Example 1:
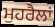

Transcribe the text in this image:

ਮੁਹਰੈਲਾਂ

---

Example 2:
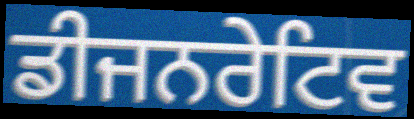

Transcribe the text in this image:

ਡੀਜਨਰੇਟਿਵ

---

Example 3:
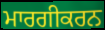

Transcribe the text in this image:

ਮਾਰਗੀਕਰਨ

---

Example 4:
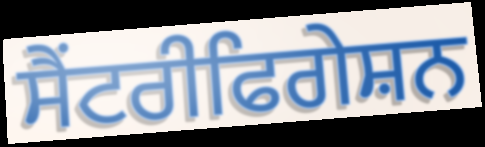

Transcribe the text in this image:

ਸੈਂਟਰੀਫਿਗੇਸ਼ਨ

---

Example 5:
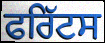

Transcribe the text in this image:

ਫਰਿੱਟਸ